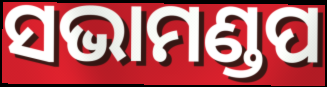
ସଭାମଣ୍ଡପ